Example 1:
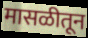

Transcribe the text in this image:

मासळीतून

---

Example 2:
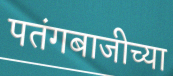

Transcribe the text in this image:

पतंगबाजीच्या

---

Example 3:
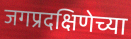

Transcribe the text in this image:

जगप्रदक्षिणेच्या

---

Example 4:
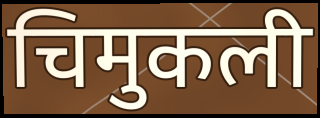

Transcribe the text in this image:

चिमुकली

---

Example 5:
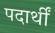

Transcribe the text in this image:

पदार्थीं